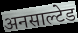
अनसाल्टेड